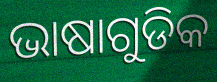
ଭାଷାଗୁଡିକ